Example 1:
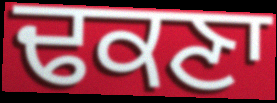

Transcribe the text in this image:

ਢਕਣਾ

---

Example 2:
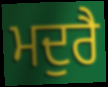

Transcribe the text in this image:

ਮਦੁਰੈ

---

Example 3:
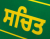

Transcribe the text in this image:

ਸਚਿਤ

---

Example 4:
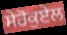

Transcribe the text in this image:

ਸੇਰੋਕੁਏਲ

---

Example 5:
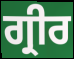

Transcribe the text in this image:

ਗ੍ਰੀਰ